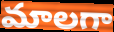
మాలగా